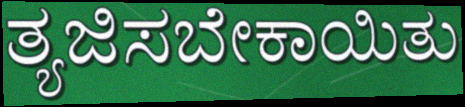
ತ್ಯಜಿಸಬೇಕಾಯಿತು